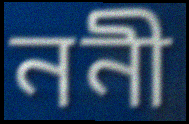
ননী